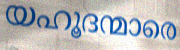
യഹൂദന്മാരെ